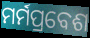
ମର୍ମପ୍ରବେଶ